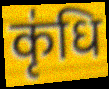
कृ॑धि